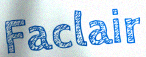
Faclair